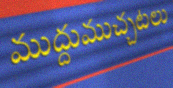
ముద్దుముచ్చటలు